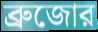
ব্রুজোর